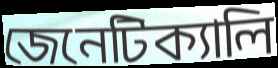
জেনেটিক্যালি